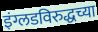
इंग्लडविरुद्धच्या